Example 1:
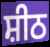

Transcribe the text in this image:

ਸ਼ੀਠ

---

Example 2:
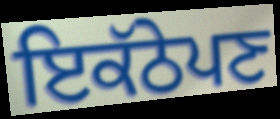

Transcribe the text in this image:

ਇਕੱਠੇਪਣ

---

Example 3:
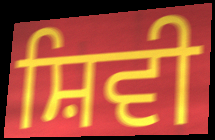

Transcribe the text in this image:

ਸ਼ਿਵੀ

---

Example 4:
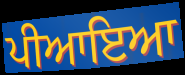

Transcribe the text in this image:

ਪੀਆਇਆ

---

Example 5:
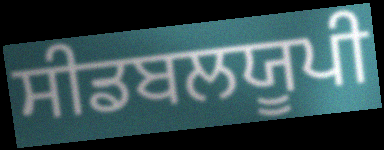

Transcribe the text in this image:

ਸੀਡਬਲਯੂਪੀ